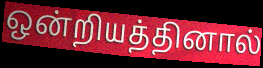
ஒன்றியத்தினால்